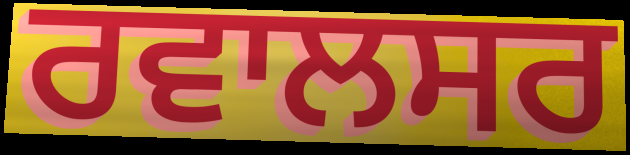
ਰਵਾਲਸਰ